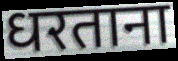
धरताना